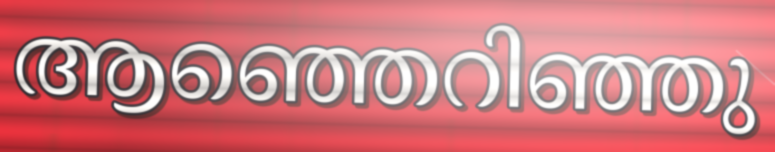
ആഞ്ഞെറിഞ്ഞു